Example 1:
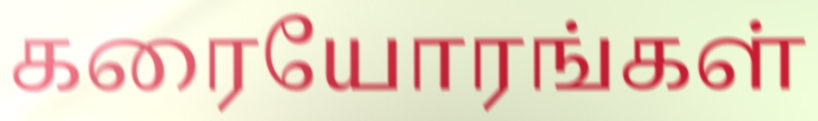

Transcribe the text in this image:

கரையோரங்கள்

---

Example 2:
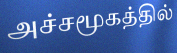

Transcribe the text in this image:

அச்சமூகத்தில்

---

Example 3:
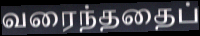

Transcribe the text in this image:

வரைந்ததைப்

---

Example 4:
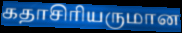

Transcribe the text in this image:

கதாசிரியருமான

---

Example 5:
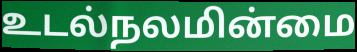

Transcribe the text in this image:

உடல்நலமின்மை